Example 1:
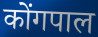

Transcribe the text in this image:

कोंगपाल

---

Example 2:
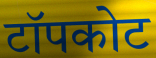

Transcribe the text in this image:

टॉपकोट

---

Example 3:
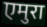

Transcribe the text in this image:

एमुरा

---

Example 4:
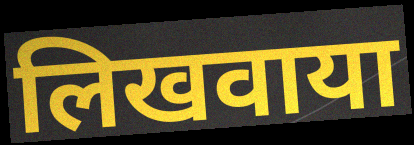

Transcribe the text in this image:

लिखवाया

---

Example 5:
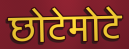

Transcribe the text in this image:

छोटेमोटे